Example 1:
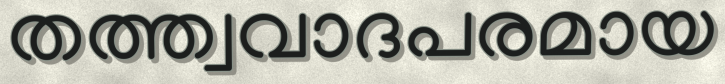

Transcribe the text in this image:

തത്ത്വവാദപരമായ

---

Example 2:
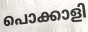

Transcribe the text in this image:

പൊക്കാളി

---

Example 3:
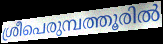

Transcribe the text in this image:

ശ്രീപെരുമ്പത്തൂരിൽ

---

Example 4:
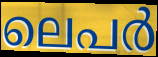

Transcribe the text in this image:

ലെപർ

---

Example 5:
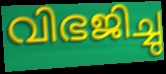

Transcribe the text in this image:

വിഭജിച്ചു